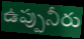
ఉప్పునీరు